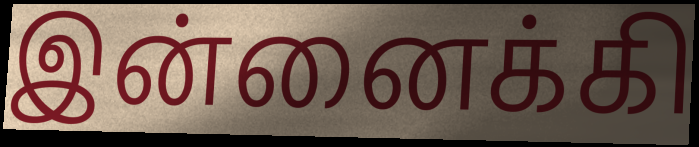
இன்னைக்கி